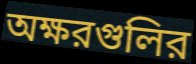
অক্ষরগুলির